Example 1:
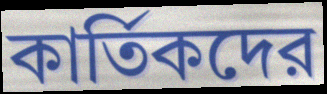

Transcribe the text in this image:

কার্তিকদের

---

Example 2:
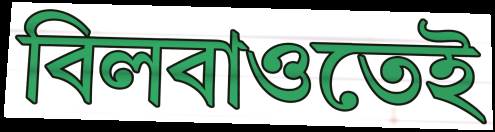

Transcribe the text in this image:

বিলবাওতেই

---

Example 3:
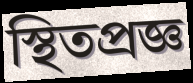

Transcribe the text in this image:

স্থিতপ্রজ্ঞ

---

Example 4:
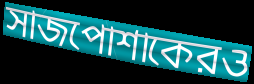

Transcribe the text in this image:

সাজপোশাকেরও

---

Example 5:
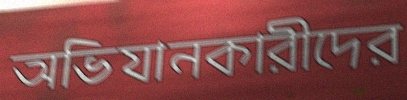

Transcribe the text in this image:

অভিযানকারীদের